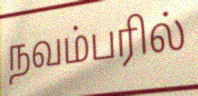
நவம்பரில்